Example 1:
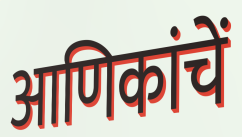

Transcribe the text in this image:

आणिकांचें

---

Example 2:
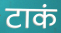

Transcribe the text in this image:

टाकं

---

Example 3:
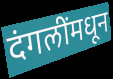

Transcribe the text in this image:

दंगलींमधून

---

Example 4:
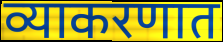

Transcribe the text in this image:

व्याकरणात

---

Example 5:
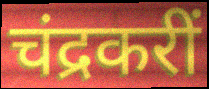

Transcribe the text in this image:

चंद्रकरीं